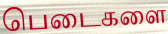
பெடைகளை